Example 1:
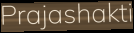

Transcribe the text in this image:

Prajashakti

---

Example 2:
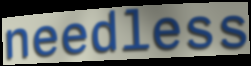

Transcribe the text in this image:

needless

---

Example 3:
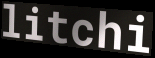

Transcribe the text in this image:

litchi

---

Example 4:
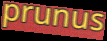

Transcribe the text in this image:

prunus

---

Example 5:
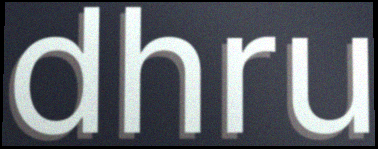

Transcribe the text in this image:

dhru